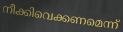
നീക്കിവെക്കണമെന്ന്